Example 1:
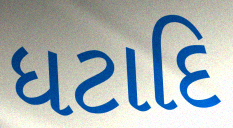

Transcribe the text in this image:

ધટાદિ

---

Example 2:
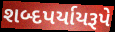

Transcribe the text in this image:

શબ્દપર્યાયરૂપે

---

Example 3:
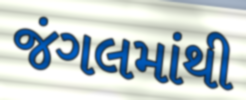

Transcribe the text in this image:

જંગલમાંથી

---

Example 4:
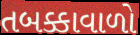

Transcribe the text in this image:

તબક્કાવાળો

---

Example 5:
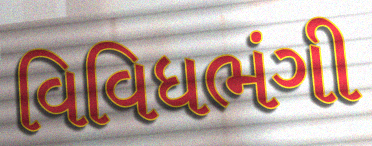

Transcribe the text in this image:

વિવિધભંગી